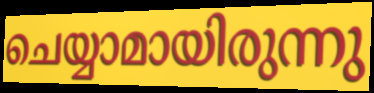
ചെയ്യാമായിരുന്നു